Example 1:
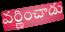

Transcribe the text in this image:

వర్ణించాడు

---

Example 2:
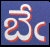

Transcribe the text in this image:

బేఁ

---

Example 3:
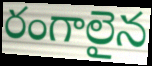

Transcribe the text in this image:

రంగాలైన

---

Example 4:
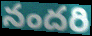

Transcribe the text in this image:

నందరి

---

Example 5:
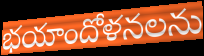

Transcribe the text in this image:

భయాందోళనలను